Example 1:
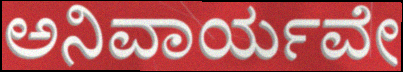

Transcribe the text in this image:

ಅನಿವಾರ್ಯವೇ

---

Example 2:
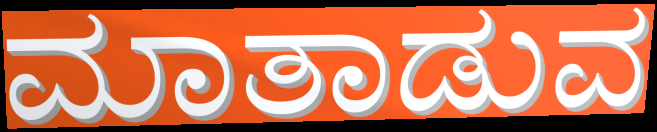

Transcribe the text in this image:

ಮಾತಾಡುವ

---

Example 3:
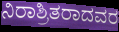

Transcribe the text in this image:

ನಿರಾಶ್ರಿತರಾದವರ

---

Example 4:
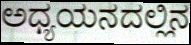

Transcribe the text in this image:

ಅಧ್ಯಯನದಲ್ಲಿನ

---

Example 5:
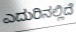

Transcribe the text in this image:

ಎದುರಿನಲ್ಲಿದೆ